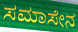
ಸಮಾಸೇನ